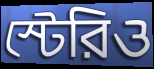
স্টেরিও